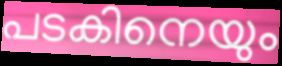
പടകിനെയും